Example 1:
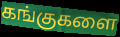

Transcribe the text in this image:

கங்குகளை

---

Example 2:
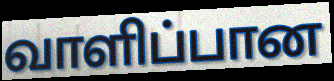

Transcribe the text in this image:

வாளிப்பான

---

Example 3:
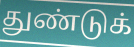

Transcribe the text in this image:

துண்டுக்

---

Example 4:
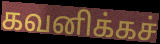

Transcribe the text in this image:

கவனிக்கச்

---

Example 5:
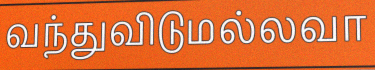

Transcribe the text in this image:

வந்துவிடுமல்லவா